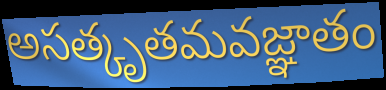
అసత్కృతమవజ్ఞాతం